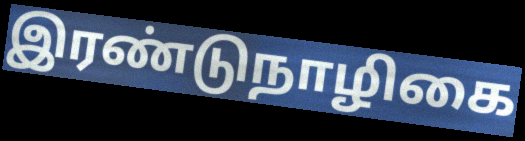
இரண்டுநாழிகை